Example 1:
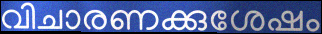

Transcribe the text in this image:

വിചാരണക്കുശേഷം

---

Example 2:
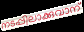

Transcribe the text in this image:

നടപ്പിലാക്കുവാന്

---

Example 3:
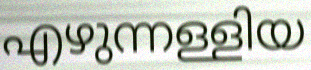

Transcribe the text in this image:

എഴുന്നള്ളിയ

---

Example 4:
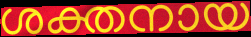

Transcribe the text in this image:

ശക്തനായ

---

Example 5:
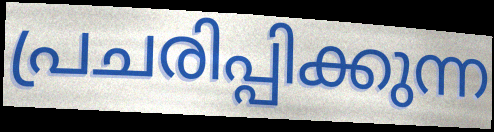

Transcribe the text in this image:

പ്രചരിപ്പിക്കുന്ന